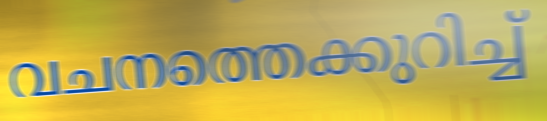
വചനത്തെക്കുറിച്ച്